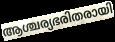
ആശ്ചര്യഭരിതരായി